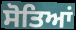
ਸੋਤਿਆਂ